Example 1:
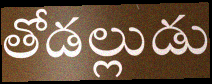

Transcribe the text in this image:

తోడల్లుడు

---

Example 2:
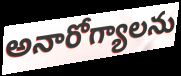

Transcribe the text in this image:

అనారోగ్యాలను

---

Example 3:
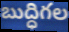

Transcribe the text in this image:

బుద్ధిగల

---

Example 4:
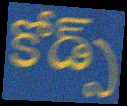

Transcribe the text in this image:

కోడ్స్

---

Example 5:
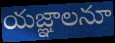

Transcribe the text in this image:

యజ్ఞాలనూ